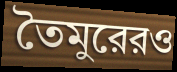
তৈমুরেরও